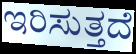
ಇರಿಸುತ್ತದೆ